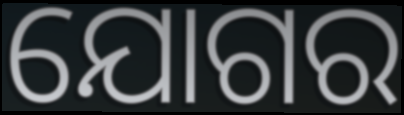
ଯୋଗର